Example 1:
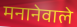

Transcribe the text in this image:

मनानेवाले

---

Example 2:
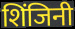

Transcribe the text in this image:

शिंजिनी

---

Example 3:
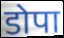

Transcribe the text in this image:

डोपा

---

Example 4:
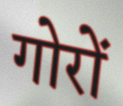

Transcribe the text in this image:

गोरों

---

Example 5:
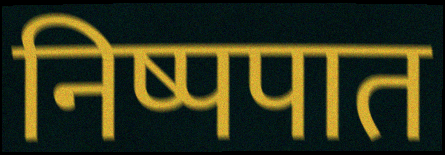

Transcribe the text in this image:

निष्पपात